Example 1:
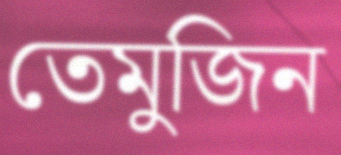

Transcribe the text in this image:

তেমুজিন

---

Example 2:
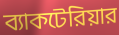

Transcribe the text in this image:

ব্যাকটেরিয়ার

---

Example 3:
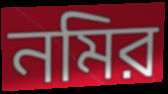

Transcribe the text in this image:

নমির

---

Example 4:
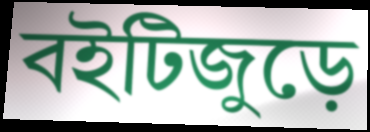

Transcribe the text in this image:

বইটিজুড়ে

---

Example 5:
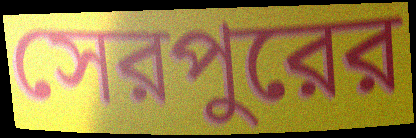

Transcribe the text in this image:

সেরপুরের